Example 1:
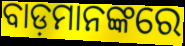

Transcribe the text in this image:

ବାଡ଼ମାନଙ୍କରେ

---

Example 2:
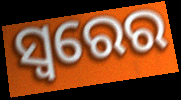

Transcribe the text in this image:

ସ୍ୱରେର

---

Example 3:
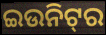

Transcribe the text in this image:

ଇଉନିଟ୍‍ର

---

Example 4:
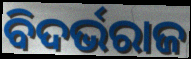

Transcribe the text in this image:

ବିଦର୍ଭରାଜ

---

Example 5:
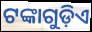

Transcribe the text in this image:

ଟଙ୍କାଗୁଡ଼ିଏ